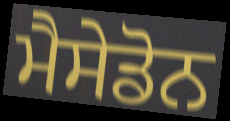
ਮੈਸੇਡੋਨ